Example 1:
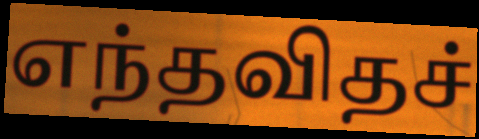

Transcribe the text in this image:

எந்தவிதச்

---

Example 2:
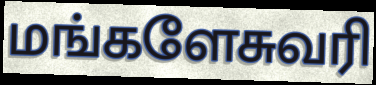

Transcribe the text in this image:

மங்களேசுவரி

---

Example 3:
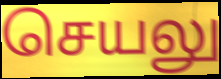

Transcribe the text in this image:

செயலு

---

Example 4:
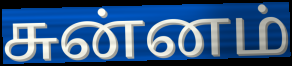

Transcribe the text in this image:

சுன்னம்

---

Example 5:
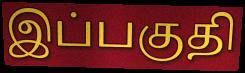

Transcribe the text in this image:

இப்பகுதி